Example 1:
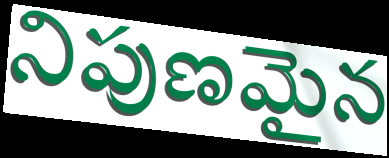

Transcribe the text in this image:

నిపుణమైన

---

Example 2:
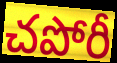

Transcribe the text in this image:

చపోరీ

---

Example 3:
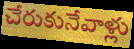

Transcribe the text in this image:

చేరుకునేవాళ్లు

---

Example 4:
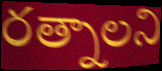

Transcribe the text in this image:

రత్నాలని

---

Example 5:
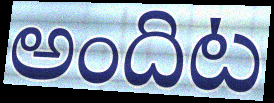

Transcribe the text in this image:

అందిట